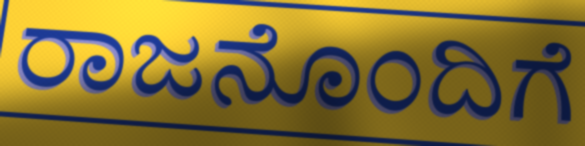
ರಾಜನೊಂದಿಗೆ